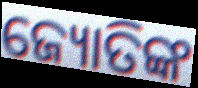
ଜ୍ୟୋତିଙ୍କ